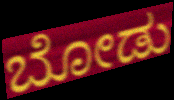
ಬೋಡು